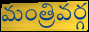
మంత్రివర్గ